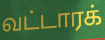
வட்டாரக்